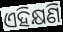
ଏହିକ୍ଷଣି